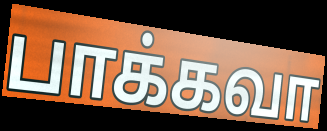
பாக்கவா